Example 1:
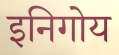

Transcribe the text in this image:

इनिगोय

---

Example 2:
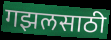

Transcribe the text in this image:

गझलसाठी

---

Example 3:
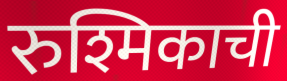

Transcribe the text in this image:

रुश्मिकाची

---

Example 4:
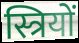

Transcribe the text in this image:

स्त्रियों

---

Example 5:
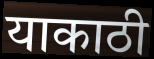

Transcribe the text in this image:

याकाठी